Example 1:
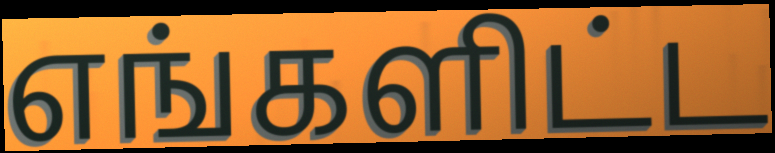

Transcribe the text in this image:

எங்களிட்ட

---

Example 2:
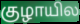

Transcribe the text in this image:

குழாயில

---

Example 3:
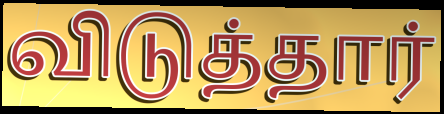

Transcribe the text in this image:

விடுத்தார்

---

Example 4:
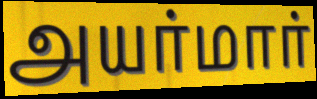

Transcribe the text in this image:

அயர்மார்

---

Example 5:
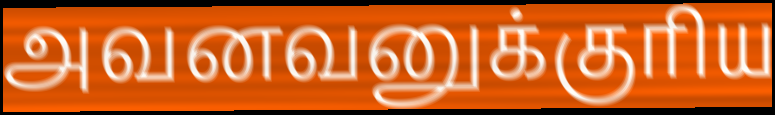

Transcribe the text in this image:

அவனவனுக்குரிய